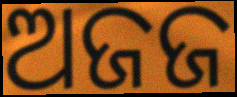
ଅଜଜ